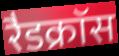
रैडक्रॉस